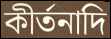
কীর্তনাদি